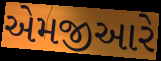
એમજીઆરે